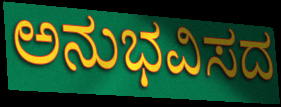
ಅನುಭವಿಸದ